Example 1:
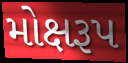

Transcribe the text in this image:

મોક્ષરૂપ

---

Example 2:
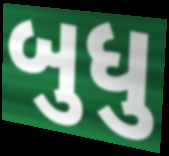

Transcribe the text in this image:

બુધુ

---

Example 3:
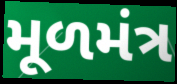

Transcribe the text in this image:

મૂળમંત્ર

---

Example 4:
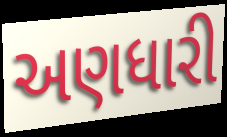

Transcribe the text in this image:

અણધારી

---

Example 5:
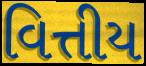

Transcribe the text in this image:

વિત્તીય